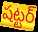
షట్టర్